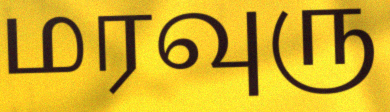
மரவுரு